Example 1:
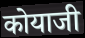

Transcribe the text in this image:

कोयाजी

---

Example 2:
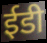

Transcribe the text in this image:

ईडी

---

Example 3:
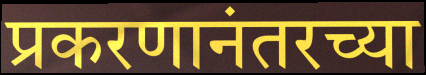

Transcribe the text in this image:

प्रकरणानंतरच्या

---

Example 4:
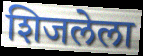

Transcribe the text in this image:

शिजलेला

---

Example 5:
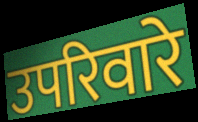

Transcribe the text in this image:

उपरिवारे